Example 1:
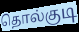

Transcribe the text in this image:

தொல்குடி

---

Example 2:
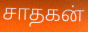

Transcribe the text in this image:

சாதகன்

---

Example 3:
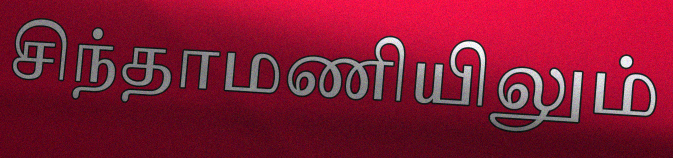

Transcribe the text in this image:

சிந்தாமணியிலும்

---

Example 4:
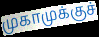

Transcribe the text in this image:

முகாமுக்குச்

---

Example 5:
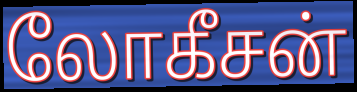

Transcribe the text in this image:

லோகீசன்